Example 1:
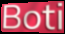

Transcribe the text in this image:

Boti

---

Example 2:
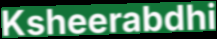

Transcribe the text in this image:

Ksheerabdhi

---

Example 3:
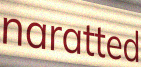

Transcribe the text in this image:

naratted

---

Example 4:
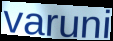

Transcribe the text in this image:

varuni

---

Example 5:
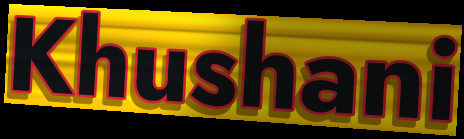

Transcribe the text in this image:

Khushani